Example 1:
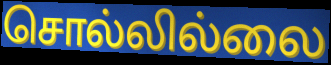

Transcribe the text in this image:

சொல்லில்லை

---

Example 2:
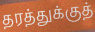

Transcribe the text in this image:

தரத்துக்குத்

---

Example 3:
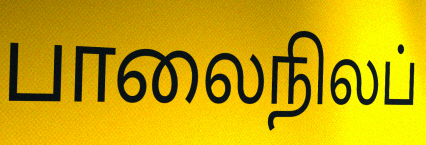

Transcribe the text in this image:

பாலைநிலப்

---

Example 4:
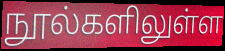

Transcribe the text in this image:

நூல்களிலுள்ள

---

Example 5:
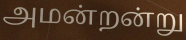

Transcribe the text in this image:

அமன்றன்று